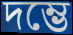
দম্ভে